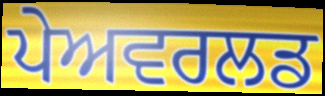
ਪੇਅਵਰਲਡ